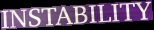
INSTABILITY